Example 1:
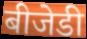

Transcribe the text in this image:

बीजेडी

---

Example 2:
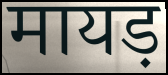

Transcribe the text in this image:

मायड़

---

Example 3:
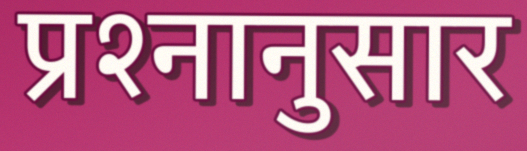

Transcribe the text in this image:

प्रश्नानुसार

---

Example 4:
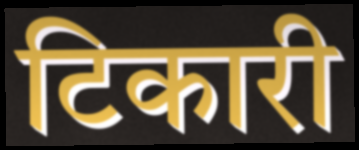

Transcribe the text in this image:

टिकारी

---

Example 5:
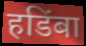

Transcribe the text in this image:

हडिंबा